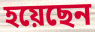
হয়েছেন